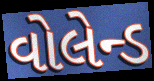
વોલેન્ડ